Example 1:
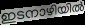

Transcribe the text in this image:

ഇടനാഴിയിൽ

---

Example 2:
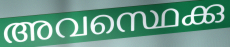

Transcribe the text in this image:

അവസ്ഥെക്കു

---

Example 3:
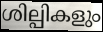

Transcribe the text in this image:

ശില്പികളും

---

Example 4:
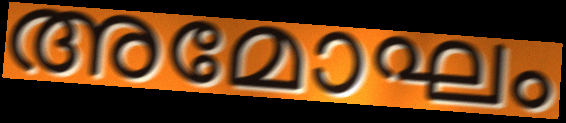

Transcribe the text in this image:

അമോഘം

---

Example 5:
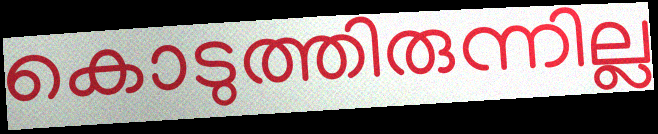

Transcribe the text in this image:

കൊടുത്തിരുന്നില്ല